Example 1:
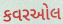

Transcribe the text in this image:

કવરઓલ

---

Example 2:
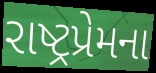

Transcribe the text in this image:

રાષ્ટ્રપ્રેમના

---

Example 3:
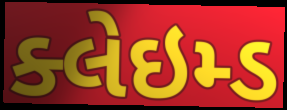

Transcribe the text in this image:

ક્લેઇમ્ડ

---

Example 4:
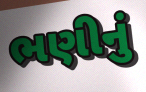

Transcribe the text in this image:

ભણીનું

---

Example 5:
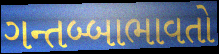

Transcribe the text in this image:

ગન્તબ્બાભાવતો